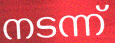
നടന്ന്